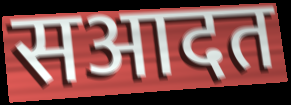
सआदत